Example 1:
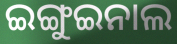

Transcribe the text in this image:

ଇଙ୍ଗୁଇନାଲ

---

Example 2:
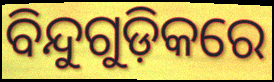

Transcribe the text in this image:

ବିନ୍ଦୁଗୁଡ଼ିକରେ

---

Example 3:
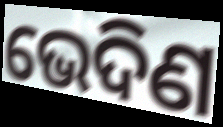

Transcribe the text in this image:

ଭେଦିଣ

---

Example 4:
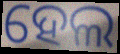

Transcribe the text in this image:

ହେଲ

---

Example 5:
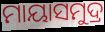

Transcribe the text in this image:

ମାୟାସମୁଦ୍ର